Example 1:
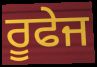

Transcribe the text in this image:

ਰੂਫੇਜ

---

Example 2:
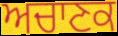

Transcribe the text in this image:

ਅਚਾਣਕ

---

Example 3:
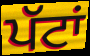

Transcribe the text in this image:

ਪੱਟਾਂ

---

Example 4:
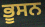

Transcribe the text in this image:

ਭੂਸਨ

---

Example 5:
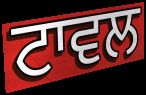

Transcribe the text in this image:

ਟਾਵਲ